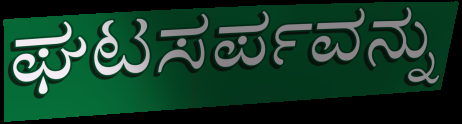
ಘಟಸರ್ಪವನ್ನು